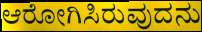
ಆರೋಗಿಸಿರುವುದನು